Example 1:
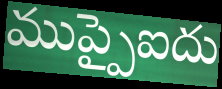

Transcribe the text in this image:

ముప్పైఐదు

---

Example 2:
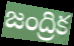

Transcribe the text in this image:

జంద్రిక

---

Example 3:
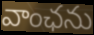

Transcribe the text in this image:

వాంఛను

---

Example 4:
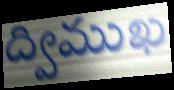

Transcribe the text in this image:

ద్విముఖ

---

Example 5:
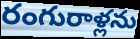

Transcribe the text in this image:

రంగురాళ్లను